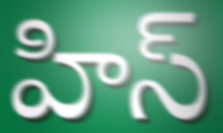
హిస్